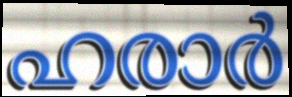
ഹരാർ